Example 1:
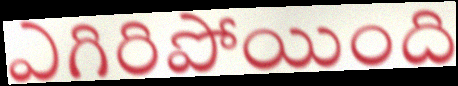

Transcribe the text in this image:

ఎగిరిపోయింది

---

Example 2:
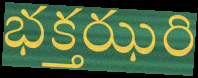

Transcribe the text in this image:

భక్తఝరి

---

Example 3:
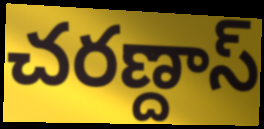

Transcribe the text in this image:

చరణ్దాస్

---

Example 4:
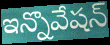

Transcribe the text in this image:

ఇన్నొవేషన్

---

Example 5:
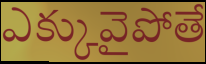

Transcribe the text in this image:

ఎక్కువైపోతే